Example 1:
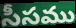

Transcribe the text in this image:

సీసము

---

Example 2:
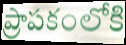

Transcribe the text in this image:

ప్రాపకంలోకి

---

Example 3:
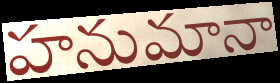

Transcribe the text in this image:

హనుమానా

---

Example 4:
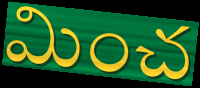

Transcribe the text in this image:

మించ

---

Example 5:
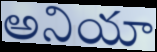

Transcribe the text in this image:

అనియా